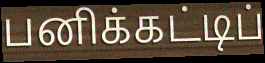
பனிக்கட்டிப்